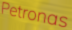
Petronas